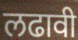
लढावी